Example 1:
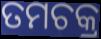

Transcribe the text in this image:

ତମଚକ୍ର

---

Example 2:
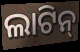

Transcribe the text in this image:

ଲାଟିନ୍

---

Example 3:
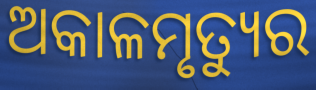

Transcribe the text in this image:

ଅକାଳମୃତ୍ୟୁର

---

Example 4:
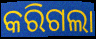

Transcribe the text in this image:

କରିଗଲା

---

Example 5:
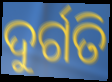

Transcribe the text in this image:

ଦୁର୍ଗତି